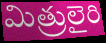
మిత్రులైరి